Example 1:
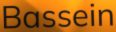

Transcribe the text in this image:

Bassein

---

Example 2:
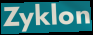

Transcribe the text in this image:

Zyklon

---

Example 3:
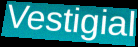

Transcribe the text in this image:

Vestigial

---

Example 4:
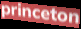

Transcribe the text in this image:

princeton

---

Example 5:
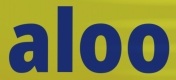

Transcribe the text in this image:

aloo